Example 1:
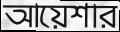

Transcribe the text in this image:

আয়েশার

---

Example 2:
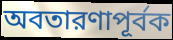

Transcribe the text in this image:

অবতারণাপূর্বক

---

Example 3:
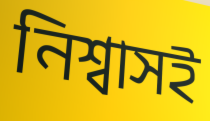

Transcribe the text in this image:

নিশ্বাসই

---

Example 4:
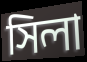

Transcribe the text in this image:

সিলা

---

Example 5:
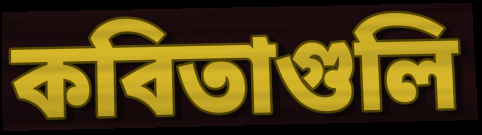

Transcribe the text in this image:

কবিতাগুলি